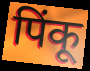
पिंकू